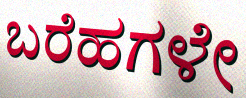
ಬರೆಹಗಳೇ